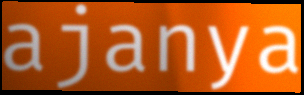
ajanya